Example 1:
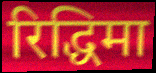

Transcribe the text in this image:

रिद्धिमा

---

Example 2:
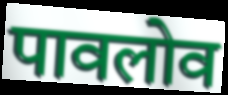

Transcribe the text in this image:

पावलोव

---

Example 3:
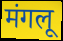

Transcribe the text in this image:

मंगलू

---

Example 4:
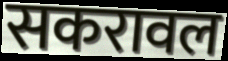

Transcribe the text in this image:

सकरावल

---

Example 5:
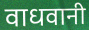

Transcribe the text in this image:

वाधवानी